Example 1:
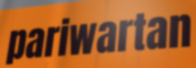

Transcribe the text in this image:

pariwartan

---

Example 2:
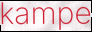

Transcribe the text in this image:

kampe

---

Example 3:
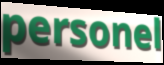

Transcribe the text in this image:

personel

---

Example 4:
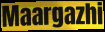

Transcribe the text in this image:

Maargazhi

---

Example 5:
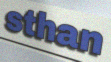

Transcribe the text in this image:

sthan